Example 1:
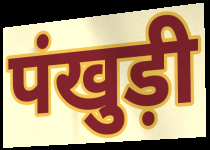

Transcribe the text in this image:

पंखुड़ी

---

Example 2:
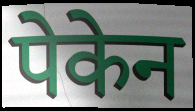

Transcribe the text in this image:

पेकेन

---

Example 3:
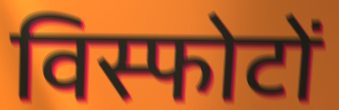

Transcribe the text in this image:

विस्फोटों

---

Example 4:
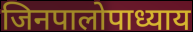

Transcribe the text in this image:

जिनपालोपाध्याय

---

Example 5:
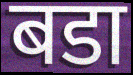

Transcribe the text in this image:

बडा